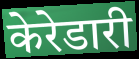
केरेडारी